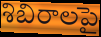
శిబిరాలపై